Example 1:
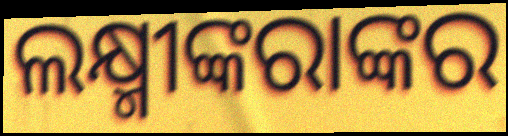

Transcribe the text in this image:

ଲକ୍ଷ୍ମୀଙ୍କରାଙ୍କର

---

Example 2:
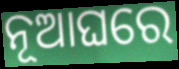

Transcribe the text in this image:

ନୂଆଘରେ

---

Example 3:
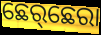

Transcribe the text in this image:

ଛେର୍‌ଛେରା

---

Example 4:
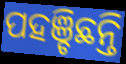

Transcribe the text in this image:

ପହଞ୍ଚିଛନ୍ତି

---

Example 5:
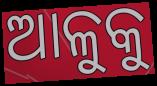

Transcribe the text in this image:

ଆଳୁକୁ